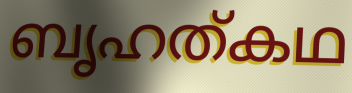
ബൃഹത്കഥ